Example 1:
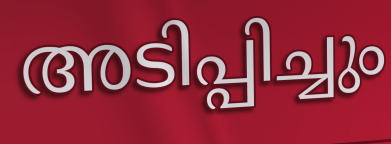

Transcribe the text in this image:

അടിപ്പിച്ചും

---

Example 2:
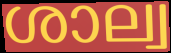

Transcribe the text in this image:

ശാല്വ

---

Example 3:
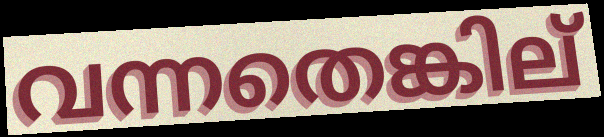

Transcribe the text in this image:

വന്നതെങ്കില്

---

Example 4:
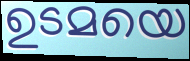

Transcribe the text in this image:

ഉടമയെ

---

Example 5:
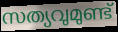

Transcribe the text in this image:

സത്യവുമുണ്ട്